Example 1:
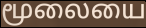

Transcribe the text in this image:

மூலையை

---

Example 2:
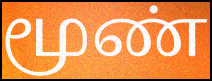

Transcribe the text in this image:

மூண்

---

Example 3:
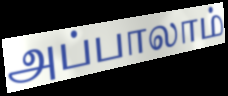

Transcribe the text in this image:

அப்பாலாம்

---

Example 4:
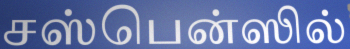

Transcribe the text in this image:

சஸ்பென்ஸில்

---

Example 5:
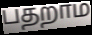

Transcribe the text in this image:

பதறாம